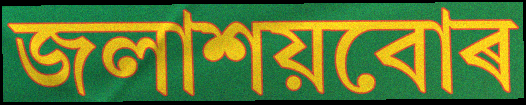
জলাশয়বোৰ